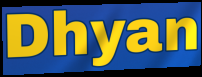
Dhyan